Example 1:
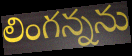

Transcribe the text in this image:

లింగన్నను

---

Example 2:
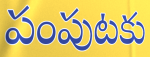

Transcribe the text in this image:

పంపుటకు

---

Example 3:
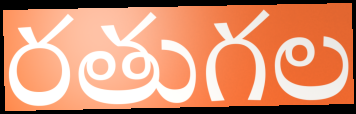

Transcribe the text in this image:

రతుగల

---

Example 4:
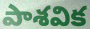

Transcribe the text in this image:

పాశవిక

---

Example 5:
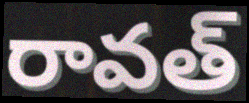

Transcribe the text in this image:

రావత్